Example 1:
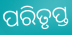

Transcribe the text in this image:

ପରିତୃପ୍ତ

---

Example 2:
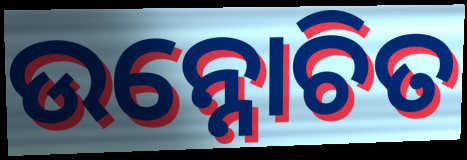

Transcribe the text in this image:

ଉନ୍ନୋଚିତ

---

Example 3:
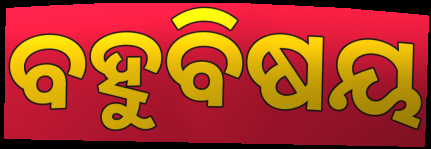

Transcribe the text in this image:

ବହୁବିଷୟ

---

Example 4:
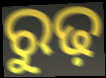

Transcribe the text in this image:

ରୁଢ଼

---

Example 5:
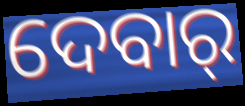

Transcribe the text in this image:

ଦେବାର୍